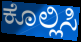
ಕೊಲ್ಲಿಸಿ